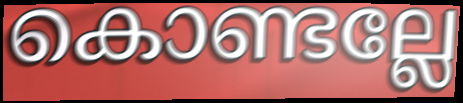
കൊണ്ടല്ലേ